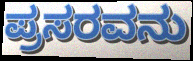
ಪ್ರಸರವನು